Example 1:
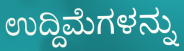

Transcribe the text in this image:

ಉದ್ದಿಮೆಗಳನ್ನು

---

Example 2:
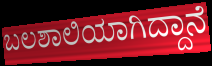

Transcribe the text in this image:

ಬಲಶಾಲಿಯಾಗಿದ್ದಾನೆ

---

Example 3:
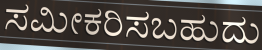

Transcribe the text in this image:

ಸಮೀಕರಿಸಬಹುದು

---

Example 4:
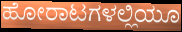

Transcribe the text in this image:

ಹೋರಾಟಗಳಲ್ಲಿಯೂ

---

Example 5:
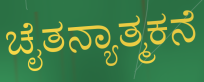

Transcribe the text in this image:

ಚೈತನ್ಯಾತ್ಮಕನೆ